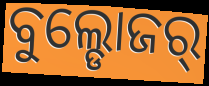
ବୁଲ୍ଡୋଜର୍